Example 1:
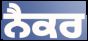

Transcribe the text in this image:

ਨੈਕਰ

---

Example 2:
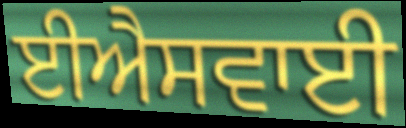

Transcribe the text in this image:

ਈਐਸਵਾਈ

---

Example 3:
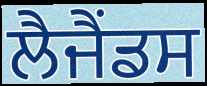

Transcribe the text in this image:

ਲੈਜੈਂਡਸ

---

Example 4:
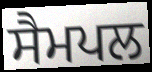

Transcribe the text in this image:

ਸੈਮਪਲ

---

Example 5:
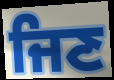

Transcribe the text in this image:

ਜਿਣ